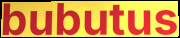
bubutus